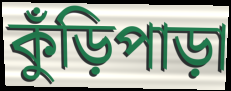
কুঁড়িপাড়া